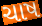
ચાષ